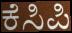
ಕೆಸಿಪಿ